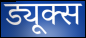
ड्यूक्स